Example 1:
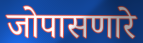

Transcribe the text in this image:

जोपासणारे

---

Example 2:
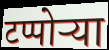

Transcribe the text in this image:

टप्पोऱ्या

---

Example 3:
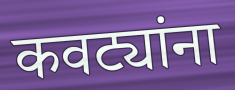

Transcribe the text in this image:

कवट्यांना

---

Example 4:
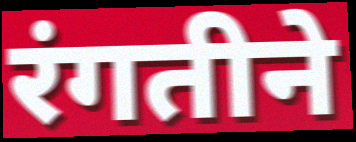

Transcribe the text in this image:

रंगतीने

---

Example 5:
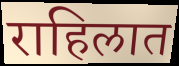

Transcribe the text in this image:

राहिलात